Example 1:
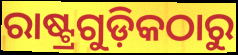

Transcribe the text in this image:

ରାଷ୍ଟ୍ରଗୁଡ଼ିକଠାରୁ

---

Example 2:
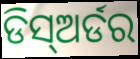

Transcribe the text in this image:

ଡିସ୍ଅର୍ଡର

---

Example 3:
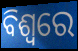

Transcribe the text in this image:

ବିଶ୍ଵରେ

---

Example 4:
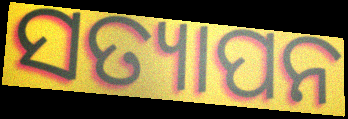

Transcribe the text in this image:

ସତ୍ୟାପନ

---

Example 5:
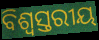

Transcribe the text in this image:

ବିଶ୍ଵସ୍ତରୀୟ